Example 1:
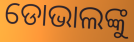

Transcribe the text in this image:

ଡୋଭାଲଙ୍କୁ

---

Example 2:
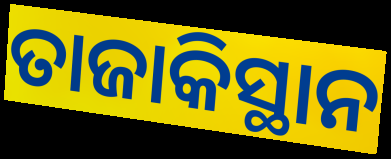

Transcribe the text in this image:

ତାଜାକିସ୍ଥାନ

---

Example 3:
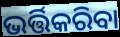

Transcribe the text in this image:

ଭର୍ତ୍ତିକରିବା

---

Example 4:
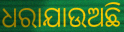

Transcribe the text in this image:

ଧରାଯାଉଅଛି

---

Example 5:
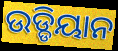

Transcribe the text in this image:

ଉଡ୍ଡିୟାନ